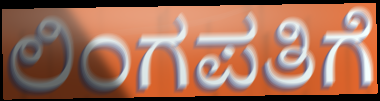
ಲಿಂಗಪತಿಗೆ